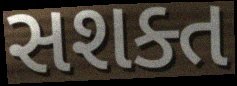
સશક્ત